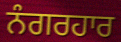
ਨੰਗਰਹਾਰ